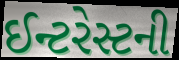
ઈન્ટરેસ્ટની